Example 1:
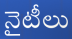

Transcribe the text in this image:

నైటీలు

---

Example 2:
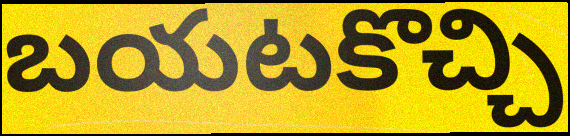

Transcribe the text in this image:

బయటకొచ్చి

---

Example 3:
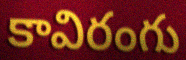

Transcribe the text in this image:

కావిరంగు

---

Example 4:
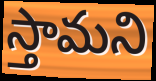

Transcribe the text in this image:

స్తామని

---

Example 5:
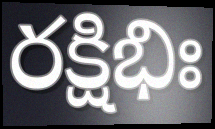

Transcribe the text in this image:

రక్షిభిః